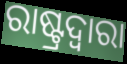
ରାଷ୍ଟ୍ରଦ୍ଵାରା